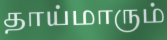
தாய்மாரும்